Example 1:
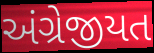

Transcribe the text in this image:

અંગ્રેજીયત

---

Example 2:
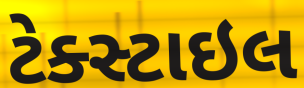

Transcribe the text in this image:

ટેક્સ્ટાઇલ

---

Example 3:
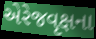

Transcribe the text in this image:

એરેજવૃક્ષના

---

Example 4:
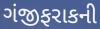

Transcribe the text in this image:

ગંજીફરાકની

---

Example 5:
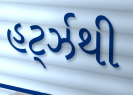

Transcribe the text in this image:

હર્ટ્ઝથી